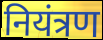
नियंत्रण